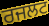
ਰਜਲਟ